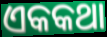
ଏକକଥା